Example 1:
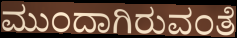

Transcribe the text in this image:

ಮುಂದಾಗಿರುವಂತೆ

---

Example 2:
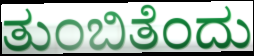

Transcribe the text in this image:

ತುಂಬಿತೆಂದು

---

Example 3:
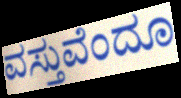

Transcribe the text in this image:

ವಸ್ತುವೆಂದೂ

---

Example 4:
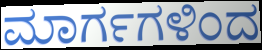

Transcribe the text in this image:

ಮಾರ್ಗಗಳಿಂದ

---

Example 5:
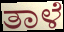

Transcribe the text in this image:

ತಾಳೆ